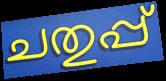
ചതുപ്പ്